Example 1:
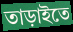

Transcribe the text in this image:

তাড়াইতে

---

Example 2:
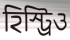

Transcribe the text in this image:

হিস্ট্রিও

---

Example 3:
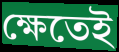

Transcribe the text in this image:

ক্ষেতেই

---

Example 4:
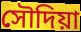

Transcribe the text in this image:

সৌদিয়া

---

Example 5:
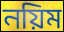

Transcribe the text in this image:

নয়িম